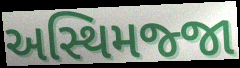
અસ્થિમજ્જા